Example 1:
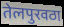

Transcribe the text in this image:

तेलपुरवठा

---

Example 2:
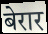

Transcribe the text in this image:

बेरार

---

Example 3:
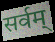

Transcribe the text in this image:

सर्वम्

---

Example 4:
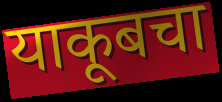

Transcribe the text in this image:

याकूबचा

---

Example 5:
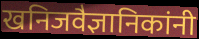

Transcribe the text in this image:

खनिजवैज्ञानिकांनी